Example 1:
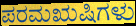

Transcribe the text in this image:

ಪರಮಋಷಿಗಳು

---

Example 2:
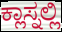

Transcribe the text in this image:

ಕ್ಲಾಸ್ನಲ್ಲಿ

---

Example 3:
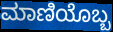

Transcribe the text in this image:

ಮಾಣಿಯೊಬ್ಬ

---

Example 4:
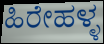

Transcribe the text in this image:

ಹಿರೇಹಳ್ಳ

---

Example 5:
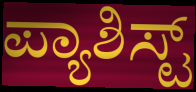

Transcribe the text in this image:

ಪ್ಯಾಶಿಸ್ಟ್